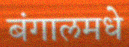
बंगालमधे